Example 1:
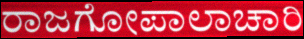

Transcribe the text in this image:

ರಾಜಗೋಪಾಲಾಚಾರಿ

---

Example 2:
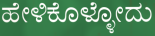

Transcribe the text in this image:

ಹೇಳಿಕೊಳ್ಳೋದು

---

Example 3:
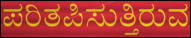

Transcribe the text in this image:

ಪರಿತಪಿಸುತ್ತಿರುವ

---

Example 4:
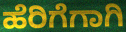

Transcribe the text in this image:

ಹೆರಿಗೆಗಾಗಿ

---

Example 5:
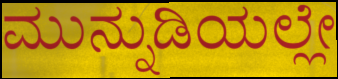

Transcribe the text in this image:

ಮುನ್ನುಡಿಯಲ್ಲೇ